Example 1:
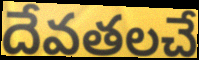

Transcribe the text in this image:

దేవతలచే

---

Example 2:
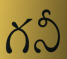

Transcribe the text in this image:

గనీ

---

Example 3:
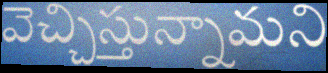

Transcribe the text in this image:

వెచ్చిస్తున్నామని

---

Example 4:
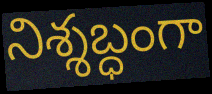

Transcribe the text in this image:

నిశ్శబ్ధంగా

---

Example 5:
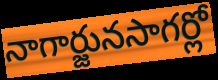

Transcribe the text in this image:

నాగార్జునసాగర్లో